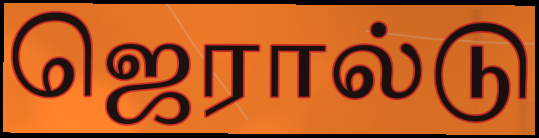
ஜெரால்டு